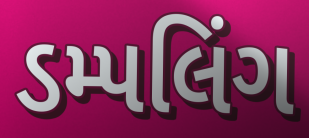
ડમ્પલિંગ